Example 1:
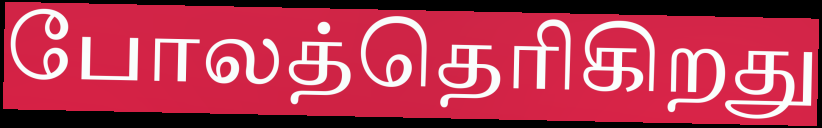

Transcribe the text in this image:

போலத்தெரிகிறது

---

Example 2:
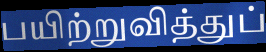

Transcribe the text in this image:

பயிற்றுவித்துப்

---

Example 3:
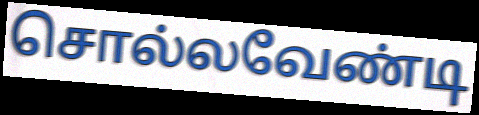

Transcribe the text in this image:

சொல்லவேண்டி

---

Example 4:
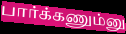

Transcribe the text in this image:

பார்க்கணும்னு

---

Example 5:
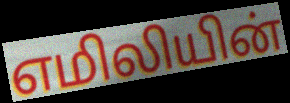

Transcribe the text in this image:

எமிலியின்